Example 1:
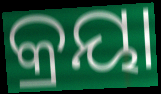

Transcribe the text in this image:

କ୍ରୟା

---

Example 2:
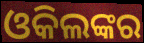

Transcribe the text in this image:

ଓକିଲଙ୍କର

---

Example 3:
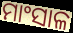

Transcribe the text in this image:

ମାଂସାଳ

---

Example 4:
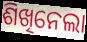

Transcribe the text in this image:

ଶିଖିନେଲା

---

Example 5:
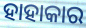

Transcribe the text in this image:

ହାହାକାର